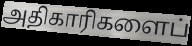
அதிகாரிகளைப்